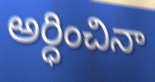
అర్ధించినా